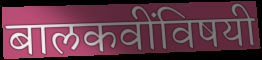
बालकवींविषयी